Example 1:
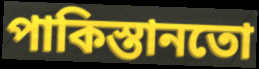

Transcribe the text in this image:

পাকিস্তানতো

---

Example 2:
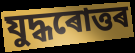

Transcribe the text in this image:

যুদ্ধৰোত্তৰ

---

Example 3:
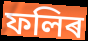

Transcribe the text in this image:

ফলিৰ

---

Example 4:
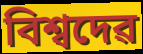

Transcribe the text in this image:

বিশ্বদেৱ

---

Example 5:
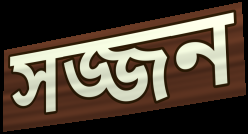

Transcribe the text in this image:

সজ্জন